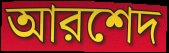
আরশেদ